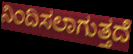
ನಿಂದಿಸಲಾಗುತ್ತದೆ